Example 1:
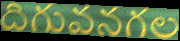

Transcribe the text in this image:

దిగువనగల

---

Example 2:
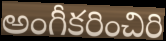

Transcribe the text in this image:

అంగీకరించిరి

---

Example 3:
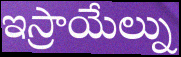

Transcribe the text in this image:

ఇస్రాయేల్ను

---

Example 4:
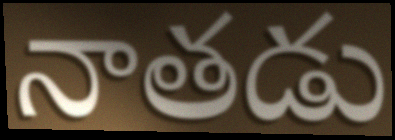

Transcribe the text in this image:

నాతడు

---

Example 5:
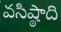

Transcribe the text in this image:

వసిష్ఠాది